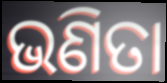
ଭଣିତା